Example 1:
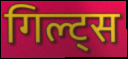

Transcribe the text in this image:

गिल्ट्स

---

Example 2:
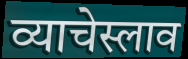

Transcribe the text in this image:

व्याचेस्लाव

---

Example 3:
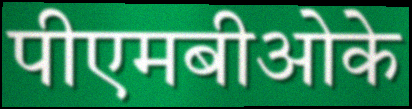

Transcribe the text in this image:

पीएमबीओके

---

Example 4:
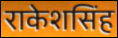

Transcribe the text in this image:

राकेशसिंह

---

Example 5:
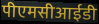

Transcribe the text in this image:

पीएमसीआईडी